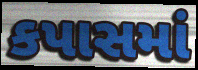
કપાસમાં